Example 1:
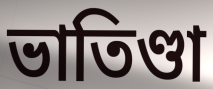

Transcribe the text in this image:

ভাতিণ্ডা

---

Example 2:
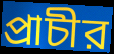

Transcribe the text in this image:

প্রাচীর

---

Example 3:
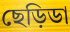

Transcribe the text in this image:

ছেড়িডা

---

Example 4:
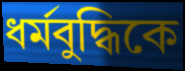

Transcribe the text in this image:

ধর্মবুদ্ধিকে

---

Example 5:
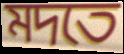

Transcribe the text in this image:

মদতে